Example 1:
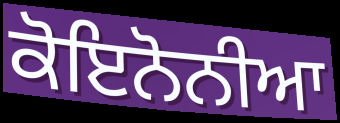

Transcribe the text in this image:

ਕੋਇਨੋਨੀਆ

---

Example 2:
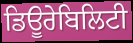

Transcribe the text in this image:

ਡਿਊਰੇਬਿਲਿਟੀ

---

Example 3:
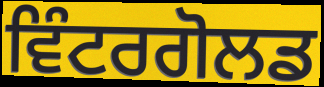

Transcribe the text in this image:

ਵਿੰਟਰਗੋਲਡ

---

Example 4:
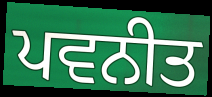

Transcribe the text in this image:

ਪਵਨੀਤ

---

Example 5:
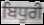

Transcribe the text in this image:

ਬਿਧੂਰੀ